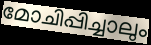
മോചിപ്പിച്ചാലും